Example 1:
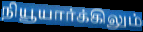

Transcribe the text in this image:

நியூயார்க்கிலும்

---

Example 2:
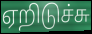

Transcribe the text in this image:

ஏறிடுச்சு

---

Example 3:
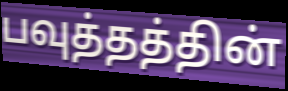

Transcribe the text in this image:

பவுத்தத்தின்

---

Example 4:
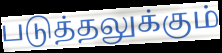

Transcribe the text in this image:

படுத்தலுக்கும்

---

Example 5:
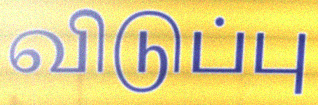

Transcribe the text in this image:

விடுப்பு